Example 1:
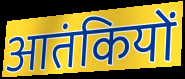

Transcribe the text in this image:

आतंकियों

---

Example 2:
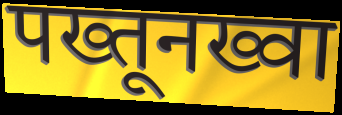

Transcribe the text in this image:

पख्तूनख्वा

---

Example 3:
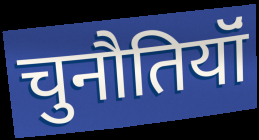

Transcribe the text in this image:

चुनौतियॉं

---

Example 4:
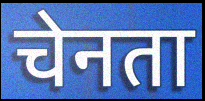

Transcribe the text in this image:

चेनता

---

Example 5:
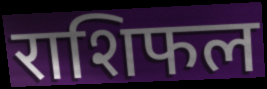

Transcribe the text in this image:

राशिफल